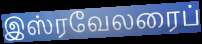
இஸ்ரவேலரைப்